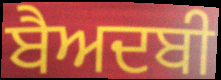
ਬੈਅਦਬੀ